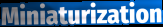
Miniaturization